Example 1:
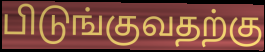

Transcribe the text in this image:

பிடுங்குவதற்கு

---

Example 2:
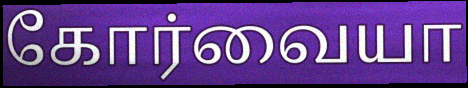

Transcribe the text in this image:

கோர்வையா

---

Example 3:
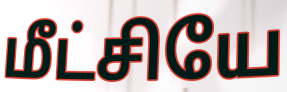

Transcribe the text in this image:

மீட்சியே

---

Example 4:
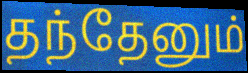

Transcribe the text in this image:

தந்தேனும்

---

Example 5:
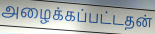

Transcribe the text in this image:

அழைக்கப்பட்டதன்